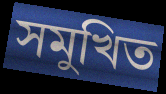
সমুখিত